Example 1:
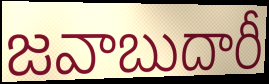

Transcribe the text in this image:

జవాబుదారీ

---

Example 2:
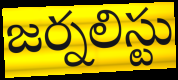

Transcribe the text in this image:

జర్నలిస్టు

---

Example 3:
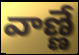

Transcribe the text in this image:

వాణ్ణే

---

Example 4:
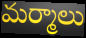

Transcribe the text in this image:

మర్మాలు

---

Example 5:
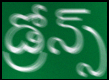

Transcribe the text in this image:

డ్రోన్స్